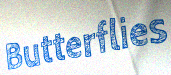
Butterflies